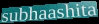
subhaashita